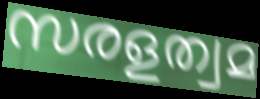
സരളത്വമ